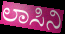
ಲಾಸಿನಿ